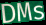
DMs